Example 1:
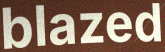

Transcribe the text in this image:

blazed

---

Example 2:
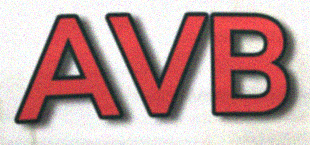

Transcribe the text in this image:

AVB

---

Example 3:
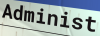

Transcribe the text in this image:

Administ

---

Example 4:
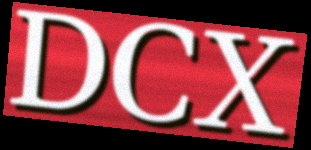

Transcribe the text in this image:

DCX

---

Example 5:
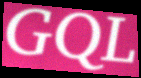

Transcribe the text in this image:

GQL